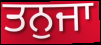
ਤਨੁਜਾ